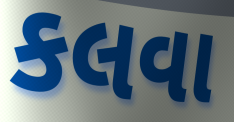
કલવા